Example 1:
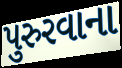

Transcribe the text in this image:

પુરુરવાના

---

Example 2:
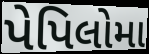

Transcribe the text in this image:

પેપિલોમા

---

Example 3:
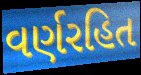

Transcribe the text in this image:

વર્ણરહિત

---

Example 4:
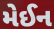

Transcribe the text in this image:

મેઈન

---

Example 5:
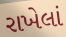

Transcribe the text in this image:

રાખેલાં